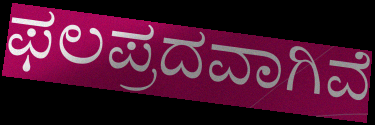
ಫಲಪ್ರದವಾಗಿವೆ